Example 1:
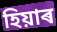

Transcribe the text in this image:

হিয়াৰ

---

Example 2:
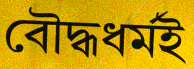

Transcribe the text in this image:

বৌদ্ধধৰ্মই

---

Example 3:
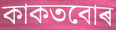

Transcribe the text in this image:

কাকতবোৰ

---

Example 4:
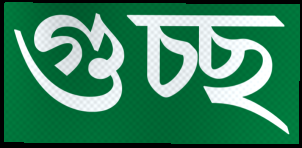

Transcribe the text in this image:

গুচ্ছ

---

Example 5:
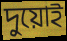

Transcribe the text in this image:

দুয়োই